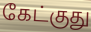
கேட்குது